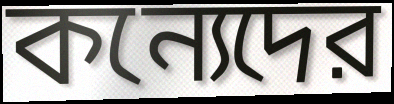
কন্যেদের